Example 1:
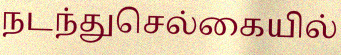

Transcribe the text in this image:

நடந்துசெல்கையில்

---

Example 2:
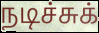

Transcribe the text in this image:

நடிச்சுக்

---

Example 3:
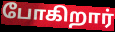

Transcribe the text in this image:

போகிறார்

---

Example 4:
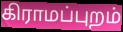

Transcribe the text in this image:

கிராமப்புறம்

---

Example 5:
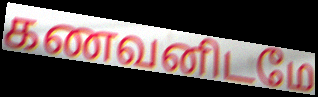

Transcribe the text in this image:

கணவனிடமே